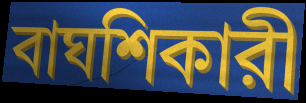
বাঘশিকারী